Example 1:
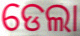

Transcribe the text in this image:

ଡେଲା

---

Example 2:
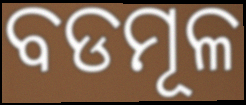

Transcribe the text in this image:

ବଡମୂଳ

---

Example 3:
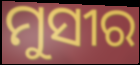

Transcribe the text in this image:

ମୁସୀର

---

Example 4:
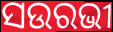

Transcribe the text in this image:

ସଉରଭୀ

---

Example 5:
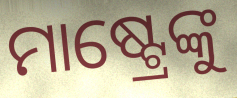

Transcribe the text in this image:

ମାଷ୍ଟ୍ରେଙ୍କୁ